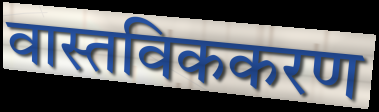
वास्तविककरण